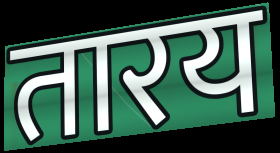
तारय